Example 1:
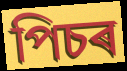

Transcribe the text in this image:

পিচৰ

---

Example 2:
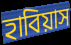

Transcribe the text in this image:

হাবিয়াস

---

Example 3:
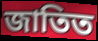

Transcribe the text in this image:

জাতিত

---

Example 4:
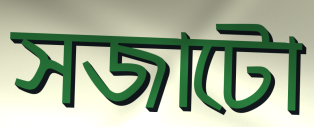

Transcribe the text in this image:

সজাটো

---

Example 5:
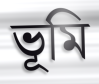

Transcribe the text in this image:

ভূমি